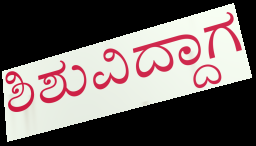
ಶಿಶುವಿದ್ದಾಗ